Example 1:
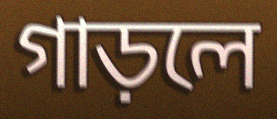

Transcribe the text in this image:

গাড়লে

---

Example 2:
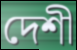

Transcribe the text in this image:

দেশী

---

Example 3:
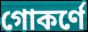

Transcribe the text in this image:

গোকর্ণে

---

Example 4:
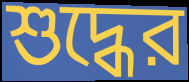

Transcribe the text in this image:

শুদ্ধের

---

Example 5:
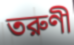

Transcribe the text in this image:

তরুণী